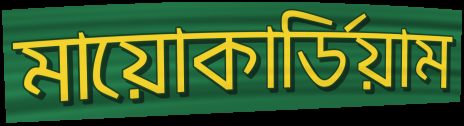
মায়োকার্ডিয়াম